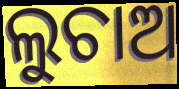
ଲୁଚାଅ